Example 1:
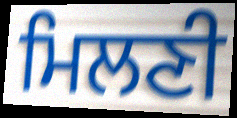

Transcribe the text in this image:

ਮਿਲਣੀ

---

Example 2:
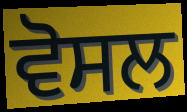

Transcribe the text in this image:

ਵੋਸਲ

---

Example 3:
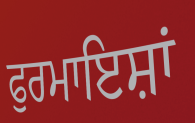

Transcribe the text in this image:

ਫੁਰਮਾਇਸ਼ਾਂ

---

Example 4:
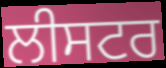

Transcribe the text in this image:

ਲੀਸਟਰ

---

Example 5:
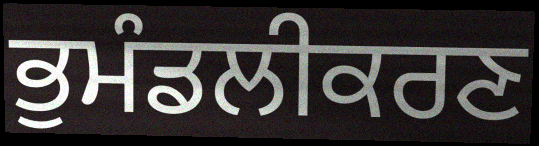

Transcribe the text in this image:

ਭੁਮੰਡਲੀਕਰਣ